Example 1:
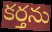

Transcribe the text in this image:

కర్తను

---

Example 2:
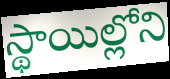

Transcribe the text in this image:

స్థాయిల్లోని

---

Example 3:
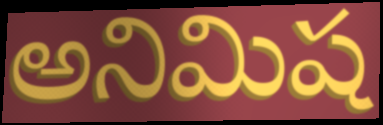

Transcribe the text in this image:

అనిమిష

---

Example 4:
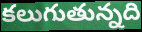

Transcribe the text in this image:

కలుగుతున్నది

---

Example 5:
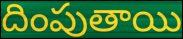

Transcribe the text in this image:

దింపుతాయి